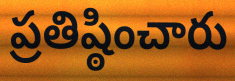
ప్రతిష్ఠించారు